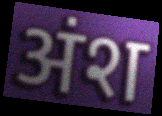
अंश